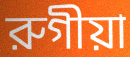
ৰুগীয়া